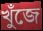
খুঁজে